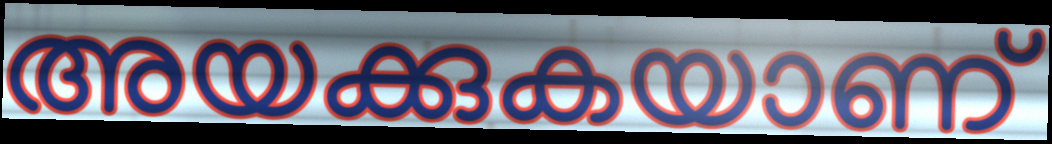
അയക്കുകയാണ്